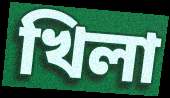
খিলা